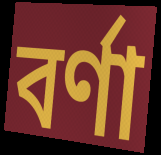
বর্ণা